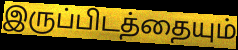
இருப்பிடத்தையும்